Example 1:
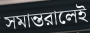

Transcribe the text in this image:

সমান্তরালেই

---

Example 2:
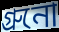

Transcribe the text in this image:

গ্রুনো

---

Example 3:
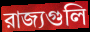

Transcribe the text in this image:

রাজ্যগুলি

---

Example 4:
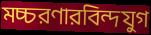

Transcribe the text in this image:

মচ্চরণারবিন্দযুগ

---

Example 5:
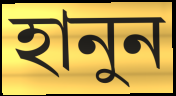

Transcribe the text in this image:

হানুন